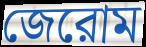
জেরোম